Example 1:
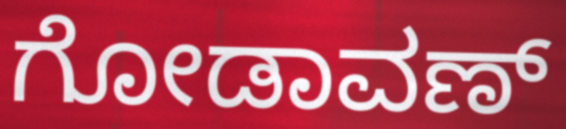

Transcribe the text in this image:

ಗೋಡಾವಣ್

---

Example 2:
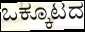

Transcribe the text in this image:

ಒಕ್ಕೂಟದ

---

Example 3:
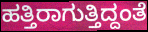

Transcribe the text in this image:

ಹತ್ತಿರಾಗುತ್ತಿದ್ದಂತೆ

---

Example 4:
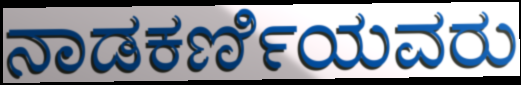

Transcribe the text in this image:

ನಾಡಕರ್ಣಿಯವರು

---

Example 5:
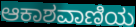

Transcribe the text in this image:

ಆಕಾಶವಾಣಿಯ